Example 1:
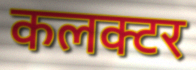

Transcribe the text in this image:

कलक्टर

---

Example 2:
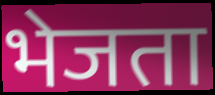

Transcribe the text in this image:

भेजता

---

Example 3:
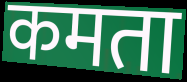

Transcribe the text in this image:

कमता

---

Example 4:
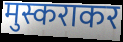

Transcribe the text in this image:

मुस्कराकर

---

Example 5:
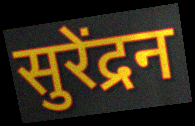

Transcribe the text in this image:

सुरेंद्रन